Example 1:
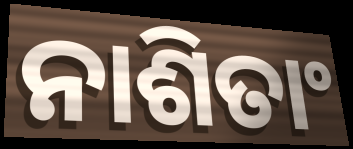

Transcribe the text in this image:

ନାଶିତାଂ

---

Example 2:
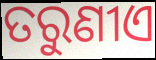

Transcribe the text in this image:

ତରୁଣୀଏ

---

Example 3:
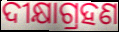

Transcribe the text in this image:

ଦୀକ୍ଷାଗ୍ରହଣ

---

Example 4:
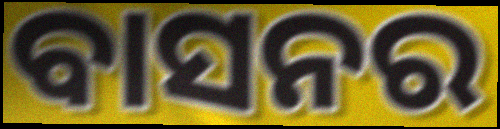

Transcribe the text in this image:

ବାସନର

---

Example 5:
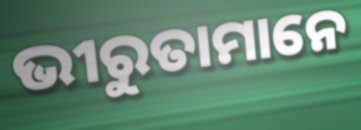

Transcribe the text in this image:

ଭୀରୁତାମାନେ